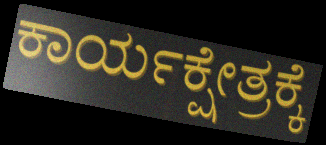
ಕಾರ್ಯಕ್ಷೇತ್ರಕ್ಕೆ